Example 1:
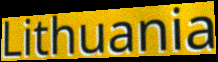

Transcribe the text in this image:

Lithuania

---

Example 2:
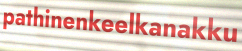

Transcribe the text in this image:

pathinenkeelkanakku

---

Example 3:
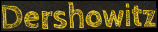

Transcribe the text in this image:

Dershowitz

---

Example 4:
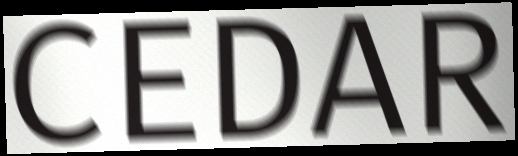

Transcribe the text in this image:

CEDAR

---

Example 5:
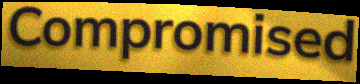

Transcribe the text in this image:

Compromised